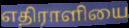
எதிராளியை